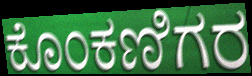
ಕೊಂಕಣಿಗರ